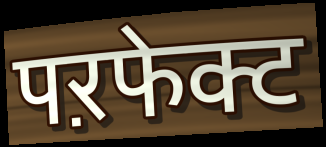
पऱफेक्ट